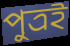
পুত্ৰই